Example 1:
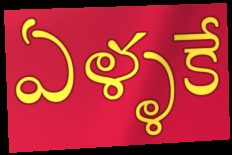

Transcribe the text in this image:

ఏళ్ళకే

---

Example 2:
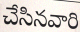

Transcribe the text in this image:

చేసినవారి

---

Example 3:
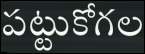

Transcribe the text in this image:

పట్టుకోగల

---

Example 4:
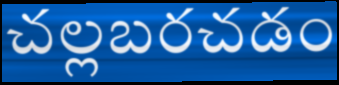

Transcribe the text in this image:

చల్లబరచడం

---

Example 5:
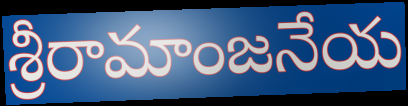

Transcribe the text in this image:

శ్రీరామాంజనేయ